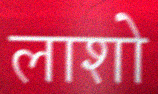
लाशो